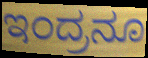
ಇಂದ್ರನೂ